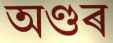
অণ্ডৰ